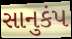
સાનુકંપ